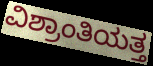
ವಿಶ್ರಾಂತಿಯತ್ತ